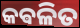
କଵଳିତ